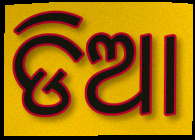
ଡିଆ